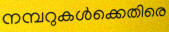
നമ്പറുകൾക്കെതിരെ